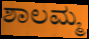
ಶಾಲಮ್ಮ